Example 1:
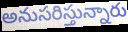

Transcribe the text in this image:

అనుసరిస్తున్నారు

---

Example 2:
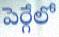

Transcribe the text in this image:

పెర్గేలో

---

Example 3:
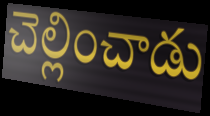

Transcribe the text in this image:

చెల్లించాడు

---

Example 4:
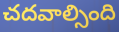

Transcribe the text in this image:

చదవాల్సింది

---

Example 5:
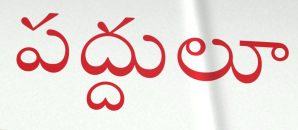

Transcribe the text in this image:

పద్దులూ